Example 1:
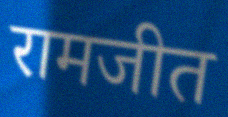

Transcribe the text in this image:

रामजीत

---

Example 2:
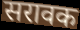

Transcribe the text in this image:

सरावक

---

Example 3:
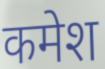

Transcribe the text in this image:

कमेश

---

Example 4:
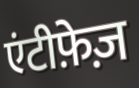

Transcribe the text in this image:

एंटीफ़ेज़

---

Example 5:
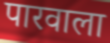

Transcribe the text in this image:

पारवाला